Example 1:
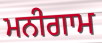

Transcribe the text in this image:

ਮਨੀਗਾਮ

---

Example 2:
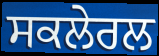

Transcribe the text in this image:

ਸਕਲੇਰਲ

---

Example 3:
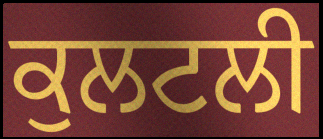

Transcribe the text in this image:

ਕੁਲਟਲੀ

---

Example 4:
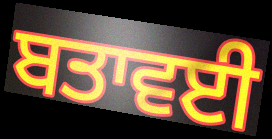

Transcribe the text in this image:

ਬਤਾਵਈ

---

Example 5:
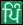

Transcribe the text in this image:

ਪਿੰ